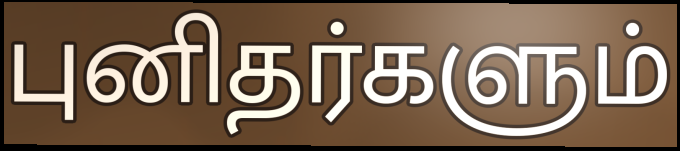
புனிதர்களும்